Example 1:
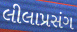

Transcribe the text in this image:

લીલાપ્રસંગ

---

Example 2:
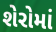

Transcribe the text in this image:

શેરોમાં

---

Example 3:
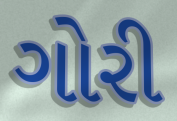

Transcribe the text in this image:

ગોરી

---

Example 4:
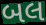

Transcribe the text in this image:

બલ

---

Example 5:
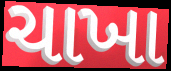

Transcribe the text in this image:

ચાખા